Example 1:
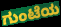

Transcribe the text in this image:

ಗುಂಟೆಯ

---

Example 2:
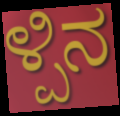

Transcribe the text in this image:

ಳ್ಪಿನ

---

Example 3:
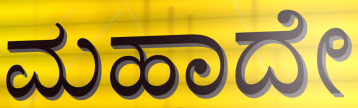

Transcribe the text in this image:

ಮಹಾದೇ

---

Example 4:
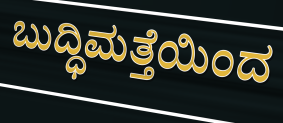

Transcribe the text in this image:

ಬುದ್ಧಿಮತ್ತೆಯಿಂದ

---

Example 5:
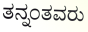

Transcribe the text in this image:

ತನ್ನಂತವರು